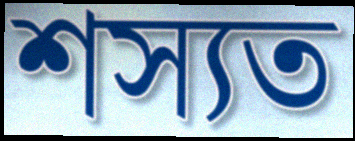
শস্যত